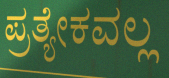
ಪ್ರತ್ಯೇಕವಲ್ಲ